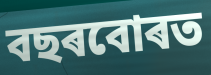
বছৰবোৰত